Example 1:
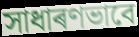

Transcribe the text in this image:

সাধাৰণভাবে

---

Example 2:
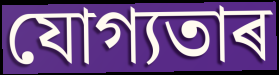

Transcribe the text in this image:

যোগ্যতাৰ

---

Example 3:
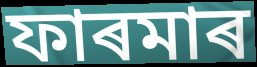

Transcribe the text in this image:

ফাৰমাৰ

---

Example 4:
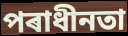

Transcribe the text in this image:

পৰাধীনতা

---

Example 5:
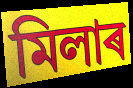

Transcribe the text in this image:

মিলাৰ